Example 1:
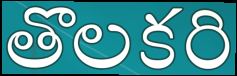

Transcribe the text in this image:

తొలకరి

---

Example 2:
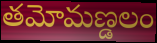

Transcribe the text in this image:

తమోమణ్డలం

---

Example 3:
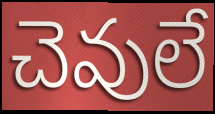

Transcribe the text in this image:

చెవులే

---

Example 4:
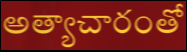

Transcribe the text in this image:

అత్యాచారంతో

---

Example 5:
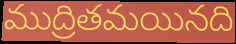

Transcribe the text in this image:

ముద్రితమయినది